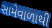
સામેવાળાથી